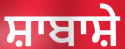
ਸ਼ਾਬਾਸ਼ੇ